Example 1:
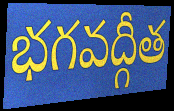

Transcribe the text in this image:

భగవద్గీత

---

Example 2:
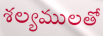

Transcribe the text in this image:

శల్యములతో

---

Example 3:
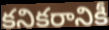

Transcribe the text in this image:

కనికరానికీ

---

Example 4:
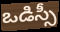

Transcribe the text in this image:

ఒడిస్సీ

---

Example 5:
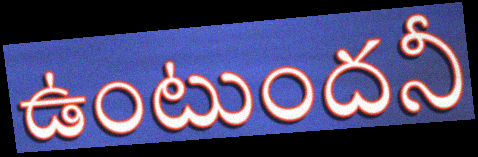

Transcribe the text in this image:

ఉంటుందనీ